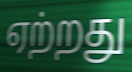
ஏற்றது